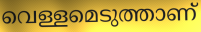
വെള്ളമെടുത്താണ്